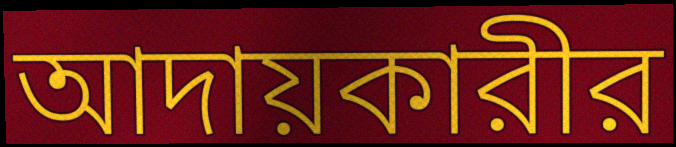
আদায়কারীর